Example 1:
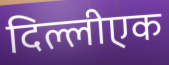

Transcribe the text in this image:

दिल्लीएक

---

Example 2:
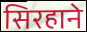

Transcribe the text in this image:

सिरहाने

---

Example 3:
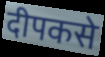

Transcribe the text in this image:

दीपकसे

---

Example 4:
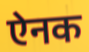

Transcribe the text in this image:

ऐनक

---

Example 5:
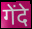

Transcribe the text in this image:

गेंदे